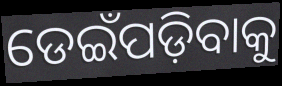
ଡେଇଁପଡ଼ିବାକୁ